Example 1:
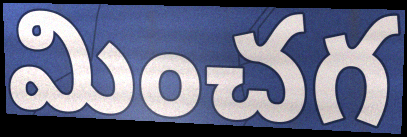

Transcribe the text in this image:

మించగ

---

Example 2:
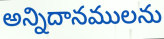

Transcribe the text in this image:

అన్నిదానములను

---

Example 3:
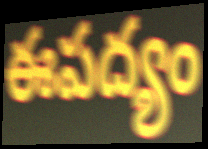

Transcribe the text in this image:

ఈపద్యం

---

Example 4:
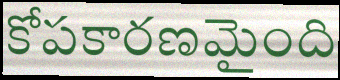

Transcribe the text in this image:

కోపకారణమైంది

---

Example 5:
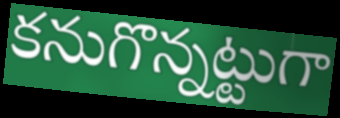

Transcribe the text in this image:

కనుగొన్నట్టుగా